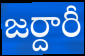
జర్దారీ